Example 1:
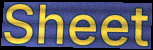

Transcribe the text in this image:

Sheet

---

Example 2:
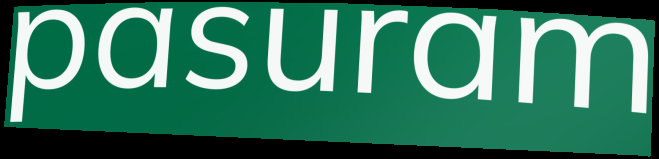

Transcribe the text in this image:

pasuram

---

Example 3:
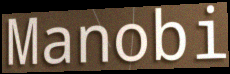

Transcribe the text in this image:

Manobi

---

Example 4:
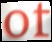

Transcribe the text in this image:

ot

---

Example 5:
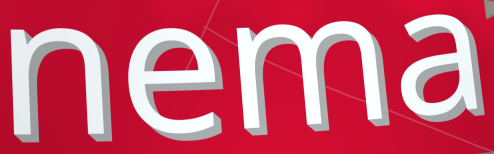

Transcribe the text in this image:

nema